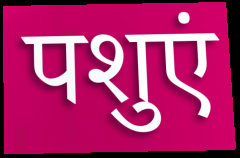
पशुएं